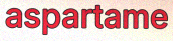
aspartame